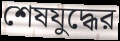
শেষযুদ্ধের